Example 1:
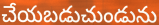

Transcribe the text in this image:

చేయబడుచుండును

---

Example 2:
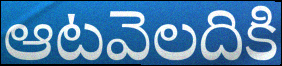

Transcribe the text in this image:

ఆటవెలదికి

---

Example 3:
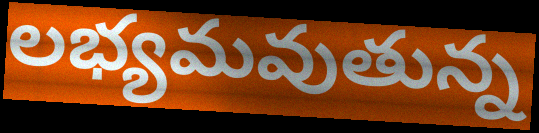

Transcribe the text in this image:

లభ్యమవుతున్న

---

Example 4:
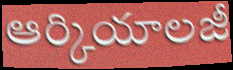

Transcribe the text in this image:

ఆర్కియాలజీ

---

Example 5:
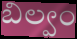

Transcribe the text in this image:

బిల్వం